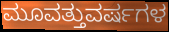
ಮೂವತ್ತುವರ್ಷಗಳ